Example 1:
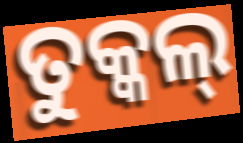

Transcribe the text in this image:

ତୁକ୍କଲ୍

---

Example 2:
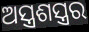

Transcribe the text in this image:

ଅସ୍ତ୍ରଶସ୍ତ୍ରର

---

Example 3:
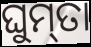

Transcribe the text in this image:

ଘୁମ୍‌ତା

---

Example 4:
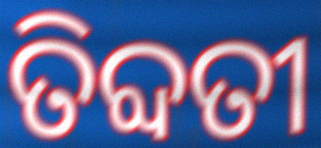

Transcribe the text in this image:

ତିବ୍ଦତୀ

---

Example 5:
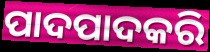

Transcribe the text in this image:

ପାଦପାଦକରି